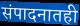
संपादनातही